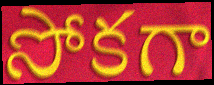
సోకగా